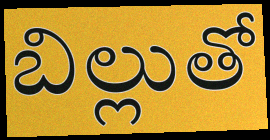
బిల్లుతో